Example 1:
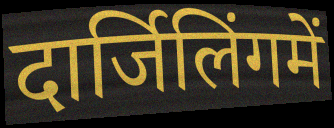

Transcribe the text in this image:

दार्जिलिंगमें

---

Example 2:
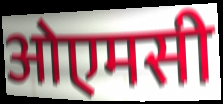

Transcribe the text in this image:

ओएमसी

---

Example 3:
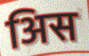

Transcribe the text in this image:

अिस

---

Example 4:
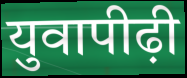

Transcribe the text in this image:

युवापीढ़ी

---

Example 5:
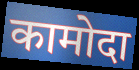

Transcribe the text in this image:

कामोदा